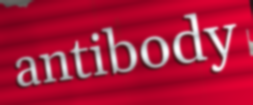
antibody